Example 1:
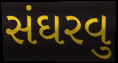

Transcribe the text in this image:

સંઘરવુ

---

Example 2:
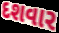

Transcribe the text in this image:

દશવાર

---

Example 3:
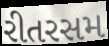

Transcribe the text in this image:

રીતરસમ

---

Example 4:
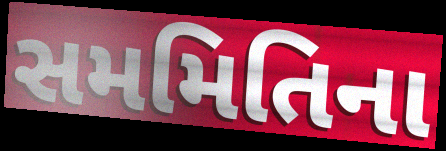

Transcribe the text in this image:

સમમિતિના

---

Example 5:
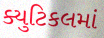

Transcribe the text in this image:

ક્યુટિકલમાં